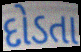
દોડતા